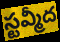
స్టవ్మీద